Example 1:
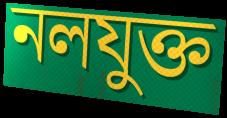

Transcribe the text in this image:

নলযুক্ত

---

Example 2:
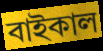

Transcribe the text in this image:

বাইকাল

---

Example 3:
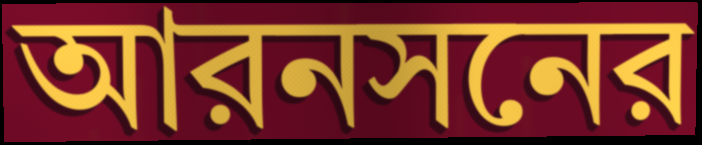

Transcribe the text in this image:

আরনসনের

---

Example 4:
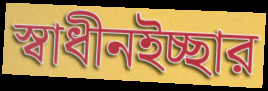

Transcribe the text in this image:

স্বাধীনইচ্ছার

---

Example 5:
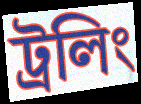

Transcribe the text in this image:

ট্রলিং